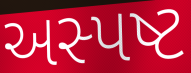
અસ્પષ્ટ